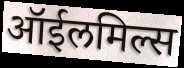
ऑईलमिल्स